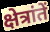
क्षेत्रांतें